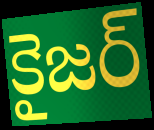
కైజర్